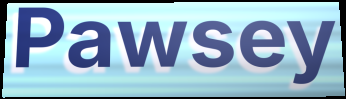
Pawsey